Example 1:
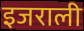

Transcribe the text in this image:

इजराली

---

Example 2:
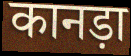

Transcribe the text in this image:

कानड़ा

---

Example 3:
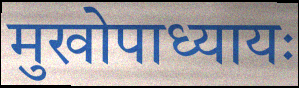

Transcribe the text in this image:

मुखोपाध्यायः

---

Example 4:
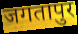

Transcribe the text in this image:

जगतापुर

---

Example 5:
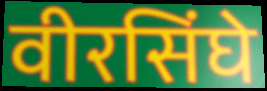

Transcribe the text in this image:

वीरसिंघे